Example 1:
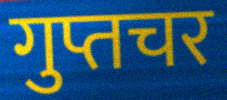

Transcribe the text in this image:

गुप्तचर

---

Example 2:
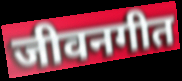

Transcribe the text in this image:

जीवनगीत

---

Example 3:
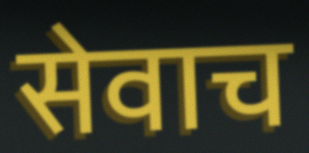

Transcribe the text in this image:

सेवाच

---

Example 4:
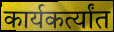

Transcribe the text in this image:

कार्यकर्त्यांत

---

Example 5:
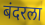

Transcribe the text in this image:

बंदरला